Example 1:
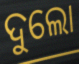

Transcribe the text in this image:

ଦୁଲୋ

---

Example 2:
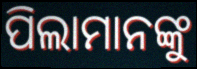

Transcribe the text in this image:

ପିଲାମାନଙ୍କୁ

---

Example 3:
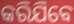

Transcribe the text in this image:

କରିଯିବେ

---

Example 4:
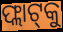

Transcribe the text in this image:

ଫ୍ଲାଟ୍‌କୁ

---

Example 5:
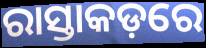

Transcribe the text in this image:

ରାସ୍ତାକଡ଼ରେ